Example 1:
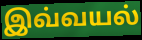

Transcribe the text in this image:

இவ்வயல்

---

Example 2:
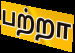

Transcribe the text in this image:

பற்றா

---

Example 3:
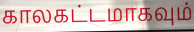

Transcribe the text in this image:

காலகட்டமாகவும்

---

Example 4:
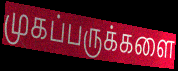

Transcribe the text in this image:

முகப்பருக்களை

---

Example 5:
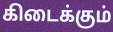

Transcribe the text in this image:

கிடைக்கும்